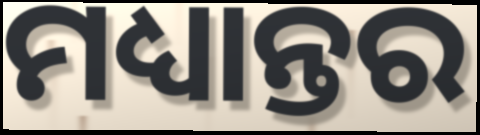
ମଧ୍ୟାନ୍ତର